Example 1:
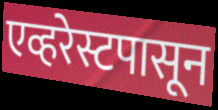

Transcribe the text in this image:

एव्हरेस्टपासून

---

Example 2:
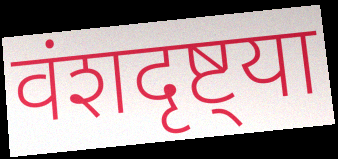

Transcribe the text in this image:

वंशदृष्ट्या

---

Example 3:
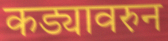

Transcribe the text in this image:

कड्यावरुन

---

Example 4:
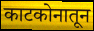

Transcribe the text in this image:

काटकोनातून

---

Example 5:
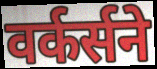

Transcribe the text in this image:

वर्कर्सने